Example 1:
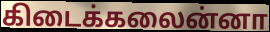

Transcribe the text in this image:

கிடைக்கலைன்னா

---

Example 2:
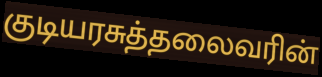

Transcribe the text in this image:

குடியரசுத்தலைவரின்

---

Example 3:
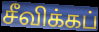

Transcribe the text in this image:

சீவிக்கப்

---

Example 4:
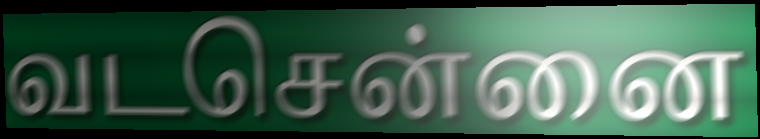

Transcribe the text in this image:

வடசென்னை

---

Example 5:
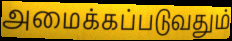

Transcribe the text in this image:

அமைக்கப்படுவதும்